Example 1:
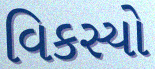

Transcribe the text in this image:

વિકસ્યો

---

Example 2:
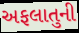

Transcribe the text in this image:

અફલાતુની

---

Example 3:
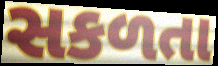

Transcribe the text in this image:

સકળતા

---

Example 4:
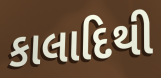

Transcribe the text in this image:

કાલાદિથી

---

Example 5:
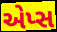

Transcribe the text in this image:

એપ્સ